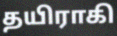
தயிராகி